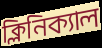
ক্লিনিক্যাল